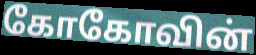
கோகோவின்